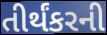
તીર્થંકરની